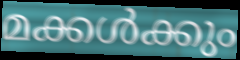
മക്കൾക്കും